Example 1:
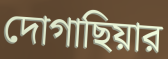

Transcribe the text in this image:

দোগাছিয়ার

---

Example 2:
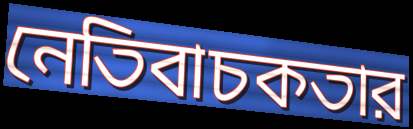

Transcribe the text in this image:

নেতিবাচকতার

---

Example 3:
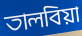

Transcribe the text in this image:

তালবিয়া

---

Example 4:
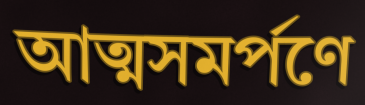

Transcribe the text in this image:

আত্মসমর্পণে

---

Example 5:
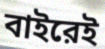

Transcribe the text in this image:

বাইরেই